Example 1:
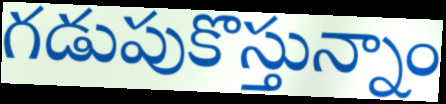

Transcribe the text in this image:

గడుపుకొస్తున్నాం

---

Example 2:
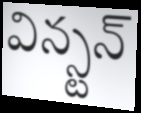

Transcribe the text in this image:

విన్స్టన్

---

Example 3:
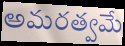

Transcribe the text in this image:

అమరత్వమే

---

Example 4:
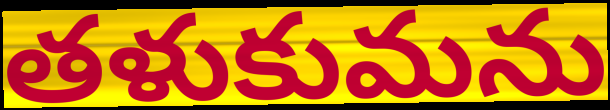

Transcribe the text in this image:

తళుకుమను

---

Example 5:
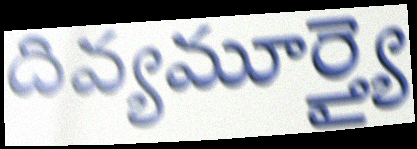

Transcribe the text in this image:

దివ్యమూర్త్యై